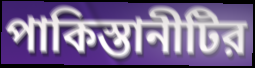
পাকিস্তানীটির